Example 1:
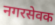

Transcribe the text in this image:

नगरसेवक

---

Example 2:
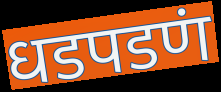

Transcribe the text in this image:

धडपडणं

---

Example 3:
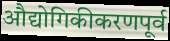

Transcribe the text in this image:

औद्योगिकीकरणपूर्व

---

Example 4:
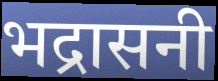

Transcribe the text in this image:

भद्रासनी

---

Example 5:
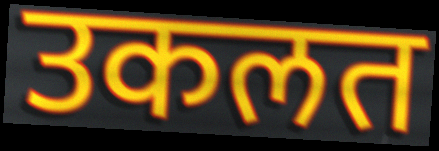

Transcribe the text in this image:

उकलत